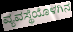
ವ್ಯವಸ್ಥೆಯೊಳಗಿನ